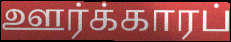
ஊர்க்காரப்